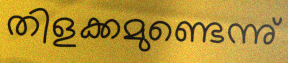
തിളക്കമുണ്ടെന്നു്